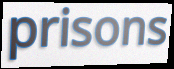
prisons